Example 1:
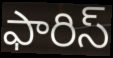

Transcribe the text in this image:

ఫారిస్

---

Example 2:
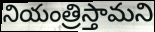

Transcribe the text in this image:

నియంత్రిస్తామని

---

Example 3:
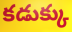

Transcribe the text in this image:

కడుక్కు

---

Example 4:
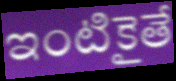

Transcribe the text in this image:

ఇంటికైతే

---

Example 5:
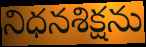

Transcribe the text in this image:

నిధనశిక్షను